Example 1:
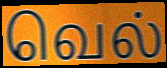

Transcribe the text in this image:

வெல்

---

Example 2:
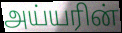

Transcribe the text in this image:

அய்யரின்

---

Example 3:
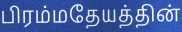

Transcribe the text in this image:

பிரம்மதேயத்தின்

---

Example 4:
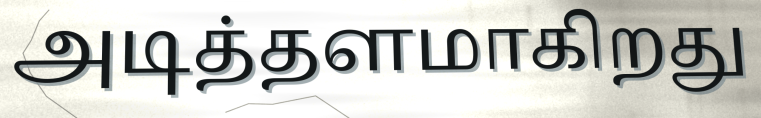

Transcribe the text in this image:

அடித்தளமாகிறது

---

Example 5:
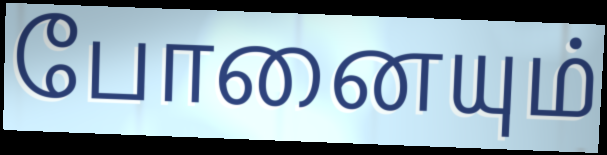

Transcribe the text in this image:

போனையும்